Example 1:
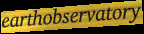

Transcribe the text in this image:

earthobservatory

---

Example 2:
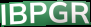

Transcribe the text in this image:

IBPGR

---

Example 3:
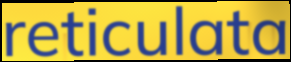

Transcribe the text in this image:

reticulata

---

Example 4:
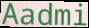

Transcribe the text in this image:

Aadmi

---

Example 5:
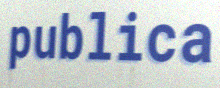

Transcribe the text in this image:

publica